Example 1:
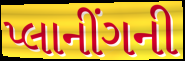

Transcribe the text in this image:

પ્લાનીંગની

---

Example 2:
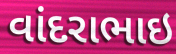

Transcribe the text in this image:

વાંદરાભાઇ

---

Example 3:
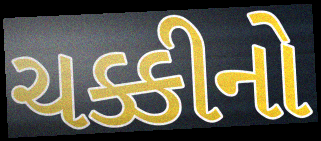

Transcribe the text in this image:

ચક્કીનો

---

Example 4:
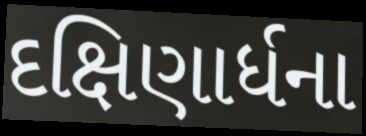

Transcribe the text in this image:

દક્ષિણાર્ધના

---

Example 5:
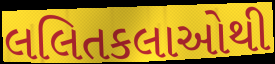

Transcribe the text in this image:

લલિતકલાઓથી